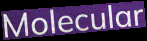
Molecular